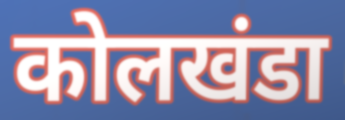
कोलखंडा